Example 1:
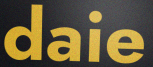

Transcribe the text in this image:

daie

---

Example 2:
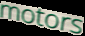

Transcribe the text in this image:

motors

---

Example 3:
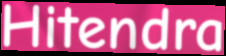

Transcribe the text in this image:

Hitendra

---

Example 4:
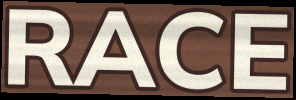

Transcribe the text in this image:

RACE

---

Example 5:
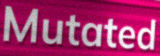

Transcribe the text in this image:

Mutated